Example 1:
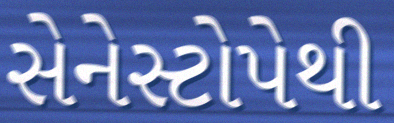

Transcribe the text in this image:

સેનેસ્ટોપેથી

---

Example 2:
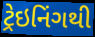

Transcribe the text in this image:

ટ્રેઇનિંગથી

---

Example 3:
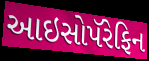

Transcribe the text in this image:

આઇસોપૅરેફિન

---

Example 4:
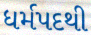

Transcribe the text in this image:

ધર્મપદથી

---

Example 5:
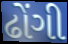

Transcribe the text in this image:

ઢોંગી